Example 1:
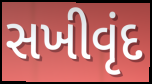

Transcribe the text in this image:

સખીવૃંદ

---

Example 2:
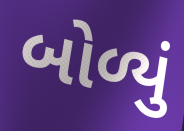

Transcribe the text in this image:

બોળ્યું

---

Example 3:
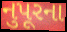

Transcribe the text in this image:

નુપૂરના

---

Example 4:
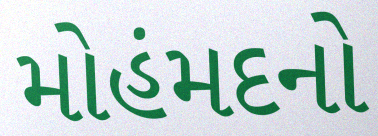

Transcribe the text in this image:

મોહંમદનો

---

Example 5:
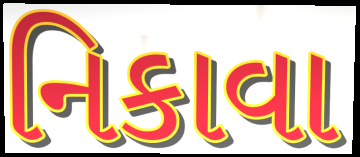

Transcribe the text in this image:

નિકાવા